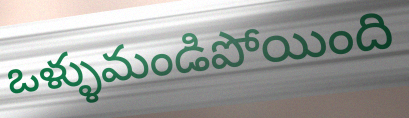
ఒళ్ళుమండిపోయింది